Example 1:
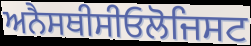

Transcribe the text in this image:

ਅਨੈਸਥੀਸੀਓਲੋਜਿਸਟ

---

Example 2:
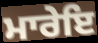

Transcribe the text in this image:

ਮਾਰੇਇ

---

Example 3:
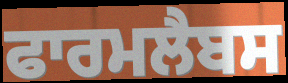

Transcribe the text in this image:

ਫਾਰਮਲੈਬਸ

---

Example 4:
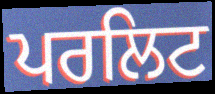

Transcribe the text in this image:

ਪਰਲਿਟ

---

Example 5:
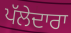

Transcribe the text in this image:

ਪੱਲੇਦਾਰਾ